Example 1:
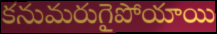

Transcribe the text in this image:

కనుమరుగైపోయాయి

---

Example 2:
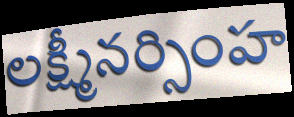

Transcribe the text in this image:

లక్ష్మీనర్సింహ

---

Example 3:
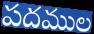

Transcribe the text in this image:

పదముల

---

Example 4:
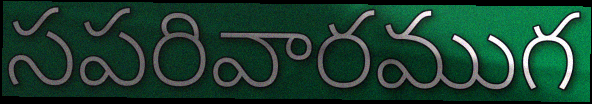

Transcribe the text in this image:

సపరివారముగ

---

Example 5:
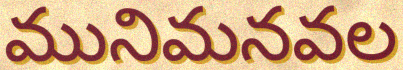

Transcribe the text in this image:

మునిమనవల